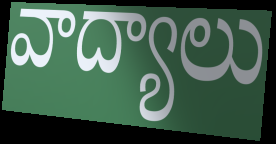
వాద్యాలు